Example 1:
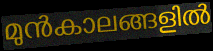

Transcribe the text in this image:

മുൻകാലങ്ങളിൽ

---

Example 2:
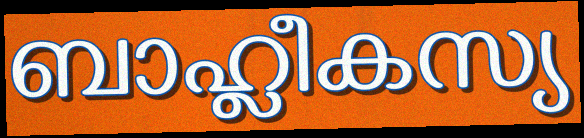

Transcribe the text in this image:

ബാഹ്ലീകസ്യ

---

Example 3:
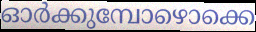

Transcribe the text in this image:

ഓർക്കുമ്പോഴൊക്കെ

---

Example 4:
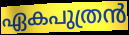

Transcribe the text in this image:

ഏകപുത്രൻ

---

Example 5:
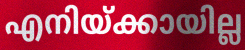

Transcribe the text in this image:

എനിയ്ക്കായില്ല